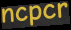
ncpcr